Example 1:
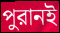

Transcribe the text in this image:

পুরানই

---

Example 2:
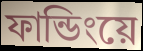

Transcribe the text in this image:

ফান্ডিংয়ে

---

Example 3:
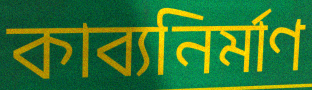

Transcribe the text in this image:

কাব্যনির্মাণ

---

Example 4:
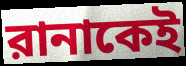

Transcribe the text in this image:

রানাকেই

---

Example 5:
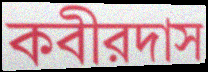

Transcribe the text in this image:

কবীরদাস